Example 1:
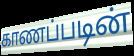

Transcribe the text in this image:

காணப்படின்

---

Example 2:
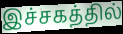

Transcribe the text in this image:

இச்சகத்தில்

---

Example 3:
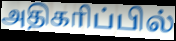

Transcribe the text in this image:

அதிகரிப்பில்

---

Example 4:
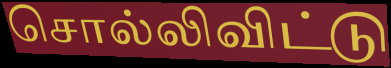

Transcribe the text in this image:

சொல்லிவிட்டு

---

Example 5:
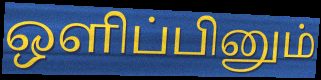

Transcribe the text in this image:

ஒளிப்பினும்